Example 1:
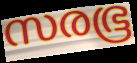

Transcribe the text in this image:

സരഭൂ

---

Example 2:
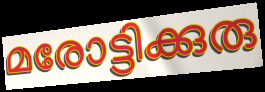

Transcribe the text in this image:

മരോട്ടിക്കുരു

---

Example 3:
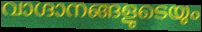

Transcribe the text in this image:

വാഗ്ദാനങ്ങളുടെയും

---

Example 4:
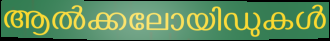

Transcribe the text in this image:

ആൽക്കലോയിഡുകൾ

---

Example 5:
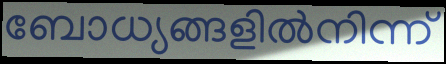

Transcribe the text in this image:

ബോധ്യങ്ങളിൽനിന്ന്